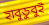
হাবুডুবুই